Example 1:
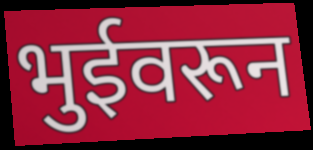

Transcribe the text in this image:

भुईवरून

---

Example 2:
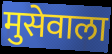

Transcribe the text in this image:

मुसेवाला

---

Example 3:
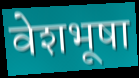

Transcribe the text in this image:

वेशभूषा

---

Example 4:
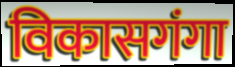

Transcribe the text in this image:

विकासगंगा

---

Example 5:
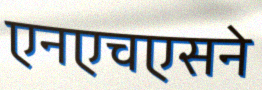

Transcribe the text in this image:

एनएचएसने